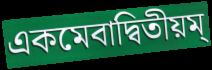
একমেবাদ্বিতীয়ম্